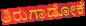
ತಿರುಗಾಡೋಕೆ